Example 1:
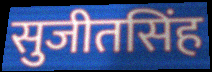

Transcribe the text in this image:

सुजीतसिंह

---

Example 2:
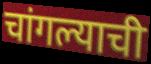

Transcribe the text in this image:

चांगल्याची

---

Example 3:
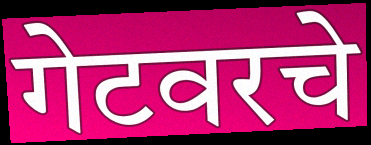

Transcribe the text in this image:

गेटवरचे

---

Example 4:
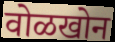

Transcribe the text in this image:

वोळखोन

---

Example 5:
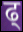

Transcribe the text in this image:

ढ्